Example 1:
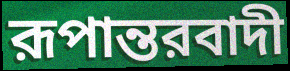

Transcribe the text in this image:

রূপান্তরবাদী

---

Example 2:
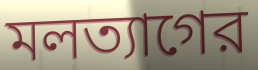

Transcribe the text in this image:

মলত্যাগের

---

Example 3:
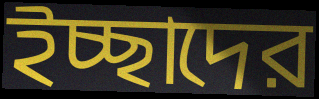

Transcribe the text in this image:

ইচ্ছাদের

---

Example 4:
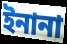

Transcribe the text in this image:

ইনানা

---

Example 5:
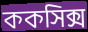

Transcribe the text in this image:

ককসিক্স